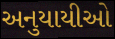
અનુયાયીઓ